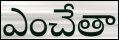
ఎంచేతా